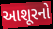
આશૂરનો